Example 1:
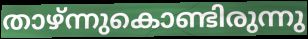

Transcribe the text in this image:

താഴ്ന്നുകൊണ്ടിരുന്നു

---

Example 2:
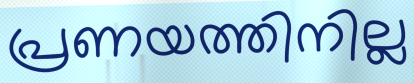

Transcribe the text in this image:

പ്രണയത്തിനില്ല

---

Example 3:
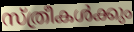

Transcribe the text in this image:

സ്ത്രീകൾക്കും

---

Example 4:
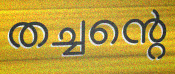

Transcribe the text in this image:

തച്ചന്റെ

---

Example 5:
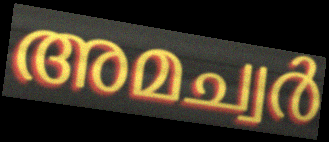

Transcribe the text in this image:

അമച്വർ